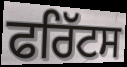
ਫਰਿੱਟਸ